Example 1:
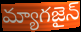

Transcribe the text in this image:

మ్యాగజైన్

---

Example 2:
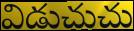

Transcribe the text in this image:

విడుచుచు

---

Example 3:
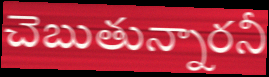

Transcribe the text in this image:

చెబుతున్నారనీ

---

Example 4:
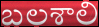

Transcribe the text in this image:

బలశాలి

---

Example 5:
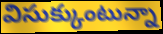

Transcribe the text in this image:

విసుక్కుంటున్నా